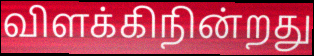
விளக்கிநின்றது